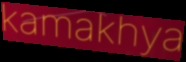
kamakhya